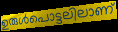
ഉരുൾപൊട്ടലിലാണ്